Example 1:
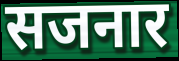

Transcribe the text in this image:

सजनार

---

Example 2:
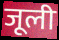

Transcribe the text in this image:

जूली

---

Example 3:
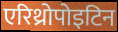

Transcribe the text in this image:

एरिथ्रोपोइटिन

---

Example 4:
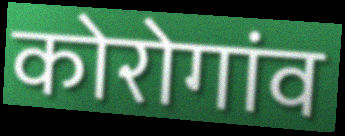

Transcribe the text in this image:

कोरोगांव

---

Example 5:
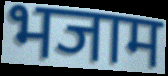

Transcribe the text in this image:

भजाम